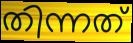
തിന്നത്